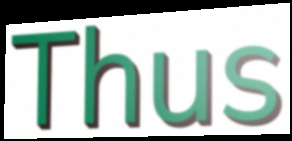
Thus